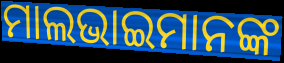
ମାଲଭାଇମାନଙ୍କ